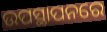
ଉପସ୍ଥାପନରେ